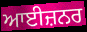
ਆਈਜ਼ਨਰ